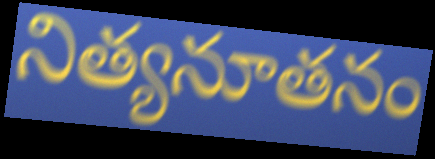
నిత్యనూతనం